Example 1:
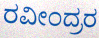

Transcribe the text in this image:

ರವೀಂದ್ರರ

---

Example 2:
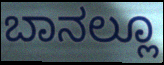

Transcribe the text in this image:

ಬಾನಲ್ಲೂ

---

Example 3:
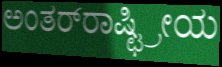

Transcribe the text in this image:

ಅಂತರ್‌ರಾಷ್ಟ್ರೀಯ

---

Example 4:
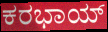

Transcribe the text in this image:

ಕರಭಾಯ್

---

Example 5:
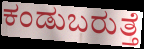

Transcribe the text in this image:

ಕಂಡುಬರುತ್ತೆ